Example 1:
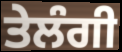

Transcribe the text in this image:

ਤੇਲੰਗੀ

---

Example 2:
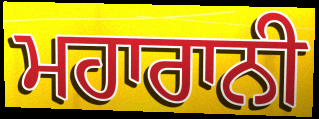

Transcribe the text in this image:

ਮਹਾਰਾਨੀ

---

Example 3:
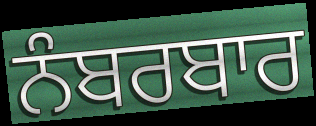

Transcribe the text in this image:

ਨੰਬਰਬਾਰ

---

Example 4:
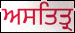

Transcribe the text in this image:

ਅਸਤਿਤ੍ਰ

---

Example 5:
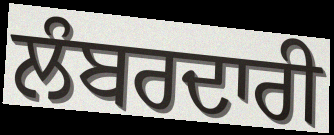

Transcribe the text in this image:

ਲੰਬਰਦਾਰੀ